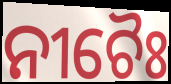
ନୀଚୈଃ